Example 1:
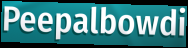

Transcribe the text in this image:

Peepalbowdi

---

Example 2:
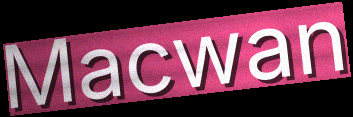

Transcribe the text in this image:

Macwan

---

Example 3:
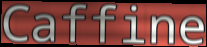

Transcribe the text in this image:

Caffine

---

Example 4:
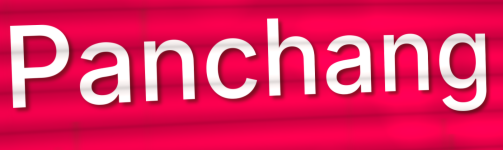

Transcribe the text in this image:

Panchang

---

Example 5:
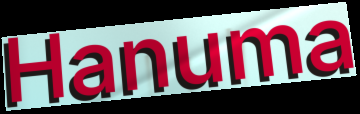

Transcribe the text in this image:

Hanuma